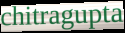
chitragupta